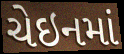
ચેઇનમાં